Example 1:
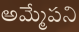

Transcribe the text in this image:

అమ్మేపని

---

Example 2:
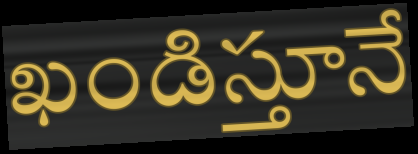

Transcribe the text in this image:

ఖండిస్తూనే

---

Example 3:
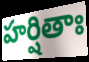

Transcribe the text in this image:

హర్షితాః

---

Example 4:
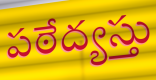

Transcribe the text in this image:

పఠేద్యస్తు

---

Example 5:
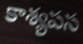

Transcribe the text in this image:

కాశ్యపస